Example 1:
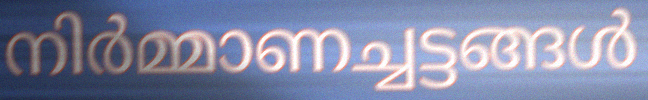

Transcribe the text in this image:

നിർമ്മാണച്ചട്ടങ്ങൾ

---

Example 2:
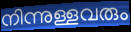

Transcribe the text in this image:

നിന്നുള്ളവരും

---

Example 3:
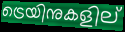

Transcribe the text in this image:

ട്രെയിനുകളില്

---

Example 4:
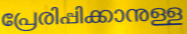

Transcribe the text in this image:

പ്രേരിപ്പിക്കാനുള്ള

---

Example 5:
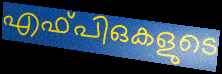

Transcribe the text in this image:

എഫ്പിഒകളുടെ